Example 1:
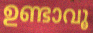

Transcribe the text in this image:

ഉണ്ടാവൂ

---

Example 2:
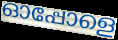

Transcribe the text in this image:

ഓപ്പോളെ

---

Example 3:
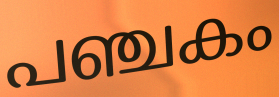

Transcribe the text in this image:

പഞ്ചകം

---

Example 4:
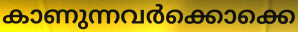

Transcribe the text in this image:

കാണുന്നവർക്കൊക്കെ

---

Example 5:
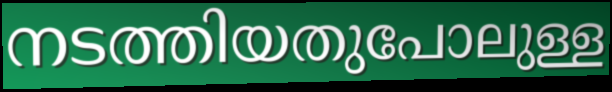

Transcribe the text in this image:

നടത്തിയതുപോലുള്ള